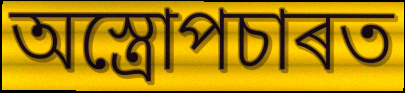
অস্ত্ৰোপচাৰত